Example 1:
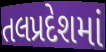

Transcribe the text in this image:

તલપ્રદેશમાં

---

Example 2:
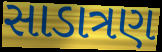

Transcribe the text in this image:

સાડાત્રણ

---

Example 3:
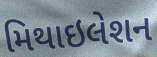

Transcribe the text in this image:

મિથાઇલેશન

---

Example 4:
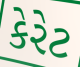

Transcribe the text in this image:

કેરેટ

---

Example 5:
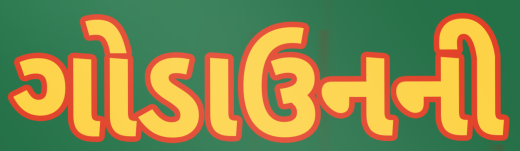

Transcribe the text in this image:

ગોડાઉનની